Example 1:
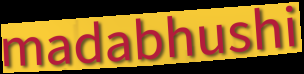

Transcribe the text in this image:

madabhushi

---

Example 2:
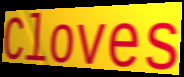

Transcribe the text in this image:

Cloves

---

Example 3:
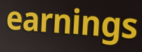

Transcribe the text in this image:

earnings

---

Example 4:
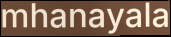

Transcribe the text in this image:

mhanayala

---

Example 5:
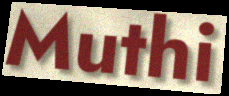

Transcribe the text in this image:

Muthi